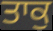
ਤਾਕੁ